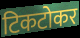
टिकटोकर